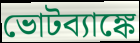
ভোটব্যাঙ্কে